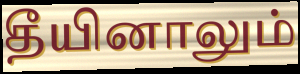
தீயினாலும்